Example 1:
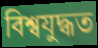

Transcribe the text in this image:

বিশ্বযুদ্ধত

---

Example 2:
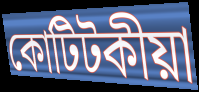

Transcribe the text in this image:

কোটিটকীয়া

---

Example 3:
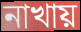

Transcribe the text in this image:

নাখায়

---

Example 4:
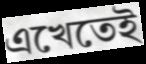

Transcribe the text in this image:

এখেতেই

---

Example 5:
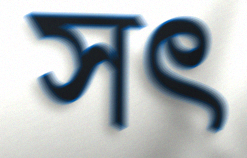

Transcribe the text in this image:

সৎ